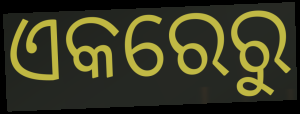
ଏକରେରୁ